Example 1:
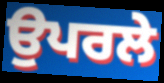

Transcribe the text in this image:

ਉਪਰਲੇ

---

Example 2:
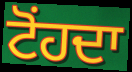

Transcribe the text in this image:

ਟੋਂਹਦਾ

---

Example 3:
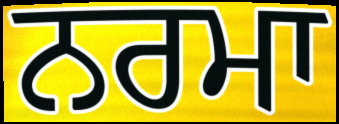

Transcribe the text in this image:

ਨਰਮਾ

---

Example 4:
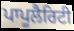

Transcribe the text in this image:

ਪਾਪੂਲੈਰਿਟੀ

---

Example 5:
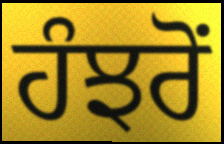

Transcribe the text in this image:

ਹੰਝਰੋਂ